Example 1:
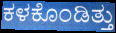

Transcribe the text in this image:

ಕಳಕೊಂಡಿತ್ತು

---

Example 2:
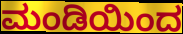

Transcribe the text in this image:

ಮಂಡಿಯಿಂದ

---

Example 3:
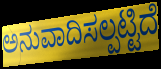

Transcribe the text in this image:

ಅನುವಾದಿಸಲ್ಪಟ್ಟಿದೆ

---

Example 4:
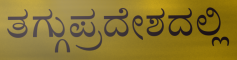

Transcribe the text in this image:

ತಗ್ಗುಪ್ರದೇಶದಲ್ಲಿ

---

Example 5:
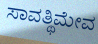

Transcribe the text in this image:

ಸಾವತ್ಥಿಮೇವ